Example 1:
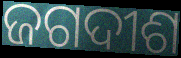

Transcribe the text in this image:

ଜଗଦୀଶ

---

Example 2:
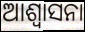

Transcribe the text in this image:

ଆଶ୍ଵାସନା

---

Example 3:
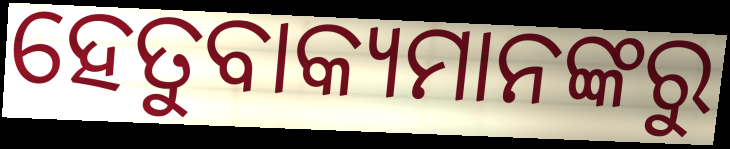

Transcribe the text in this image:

ହେତୁବାକ୍ୟମାନଙ୍କରୁ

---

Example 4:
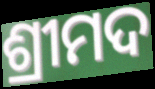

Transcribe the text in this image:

ଶ୍ରୀମଦ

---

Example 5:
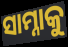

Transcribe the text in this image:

ସାମ୍ନାକୁ